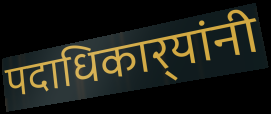
पदाधिकार्‍यांनी